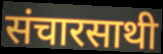
संचारसाथी